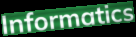
Informatics